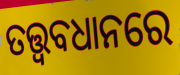
ତତ୍ତ୍ୱବଧାନରେ